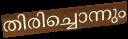
തിരിച്ചൊന്നും